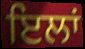
ਇਲਾਂ